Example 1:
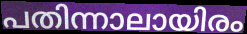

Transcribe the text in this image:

പതിന്നാലായിരം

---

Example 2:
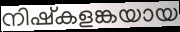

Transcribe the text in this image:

നിഷ്കളങ്കയായ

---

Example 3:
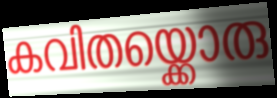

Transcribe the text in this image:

കവിതയ്ക്കൊരു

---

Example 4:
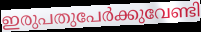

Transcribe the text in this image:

ഇരുപതുപേർക്കുവേണ്ടി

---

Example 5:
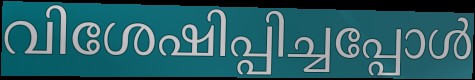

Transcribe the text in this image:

വിശേഷിപ്പിച്ചപ്പോൾ